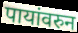
पायांवरुन